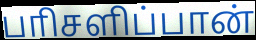
பரிசளிப்பான்